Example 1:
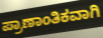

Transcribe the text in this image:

ಪ್ರಾಣಾಂತಿಕವಾಗಿ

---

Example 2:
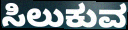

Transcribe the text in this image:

ಸಿಲುಕುವ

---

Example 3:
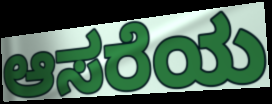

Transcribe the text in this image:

ಆಸರೆಯ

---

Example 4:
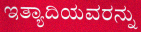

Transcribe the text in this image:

ಇತ್ಯಾದಿಯವರನ್ನು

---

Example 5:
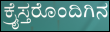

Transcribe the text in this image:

ಕ್ರೈಸ್ತರೊಂದಿಗಿನ